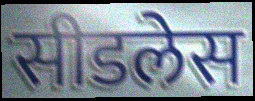
सीडलेस